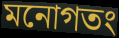
মনোগতং